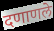
दणाणले